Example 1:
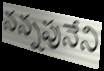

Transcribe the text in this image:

నన్నపునేని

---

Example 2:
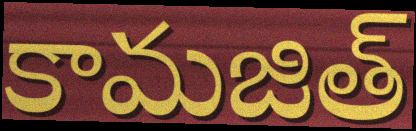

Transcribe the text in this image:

కామజిత్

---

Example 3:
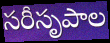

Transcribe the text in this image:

సరీసృపాల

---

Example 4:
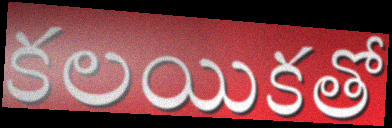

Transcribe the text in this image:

కలయికతో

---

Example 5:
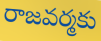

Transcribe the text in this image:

రాజవర్మకు